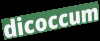
dicoccum